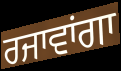
ਰਜਾਵਾਂਗਾ